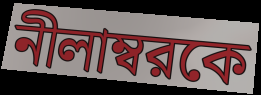
নীলাম্বরকে